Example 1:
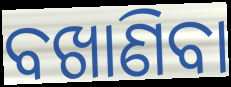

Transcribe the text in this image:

ବଖାଣିବା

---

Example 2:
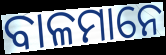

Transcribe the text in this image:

ବାଳମାନେ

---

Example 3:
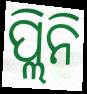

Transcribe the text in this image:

ପ୍ଲିନି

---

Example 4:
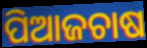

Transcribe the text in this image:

ପିଆଜଚାଷ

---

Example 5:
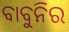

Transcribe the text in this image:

ବାବୁନିର